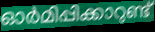
ഓർമിപ്പിക്കാറുണ്ട്